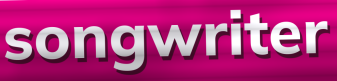
songwriter